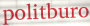
politburo